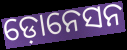
ଡ଼ୋନେସନ